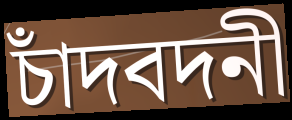
চাঁদবদনী